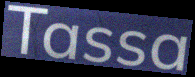
Tassa